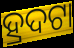
ହ୍ରଦଟା